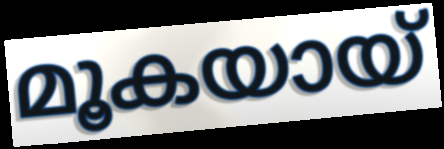
മൂകയായ്